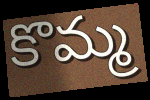
కొమ్మ